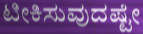
ಟೀಕಿಸುವುದಷ್ಟೇ